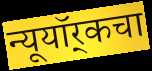
न्यूयॉर्कचा